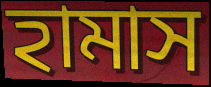
হামাস